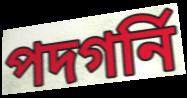
পদগর্নি